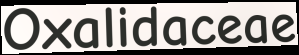
Oxalidaceae